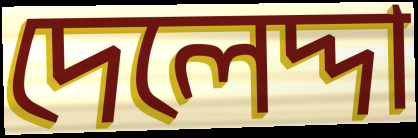
দেলেদ্দা